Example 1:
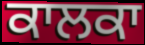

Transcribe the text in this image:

ਕਾਲਕਾ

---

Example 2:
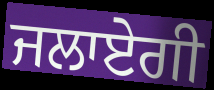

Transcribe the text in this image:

ਜਲਾਏਗੀ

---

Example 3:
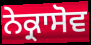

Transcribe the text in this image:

ਨੇਕ੍ਰਾਸੋਵ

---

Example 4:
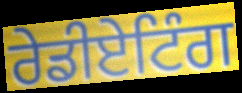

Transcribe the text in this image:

ਰੇਡੀਏਟਿੰਗ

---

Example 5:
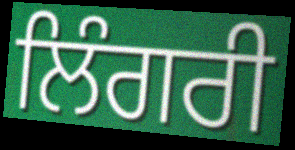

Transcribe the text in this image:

ਲਿੰਗਰੀ